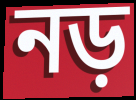
নড়